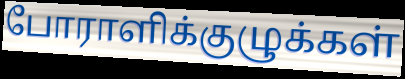
போராளிக்குழுக்கள்